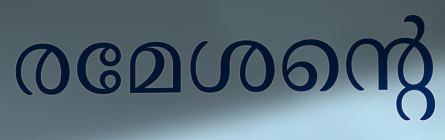
രമേശന്റെ